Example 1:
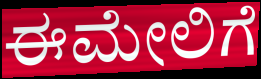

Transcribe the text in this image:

ಈಮೇಲಿಗೆ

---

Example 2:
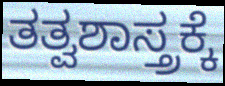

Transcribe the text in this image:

ತತ್ವಶಾಸ್ತ್ರಕ್ಕೆ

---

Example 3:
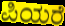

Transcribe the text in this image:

ಪಿಯರೆ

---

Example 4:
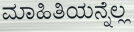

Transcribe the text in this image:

ಮಾಹಿತಿಯನ್ನೆಲ್ಲ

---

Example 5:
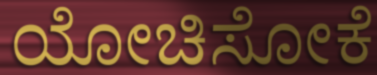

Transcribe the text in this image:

ಯೋಚಿಸೋಕೆ